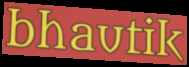
bhautik